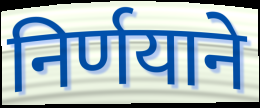
निर्णयाने